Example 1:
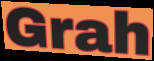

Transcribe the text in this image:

Grah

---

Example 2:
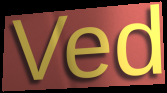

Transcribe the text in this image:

Ved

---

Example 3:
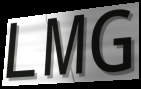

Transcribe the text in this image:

LMG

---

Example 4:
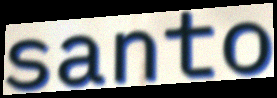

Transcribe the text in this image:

santo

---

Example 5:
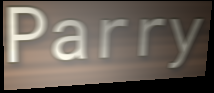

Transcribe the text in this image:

Parry